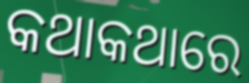
କଥାକଥାରେ